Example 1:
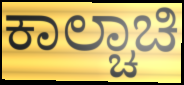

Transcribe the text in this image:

ಕಾಲ್ಚಾಚಿ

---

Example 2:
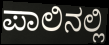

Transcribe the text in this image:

ಪಾಲಿನಲ್ಲಿ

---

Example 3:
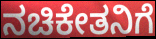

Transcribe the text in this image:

ನಚಿಕೇತನಿಗೆ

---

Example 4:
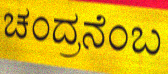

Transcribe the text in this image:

ಚಂದ್ರನೆಂಬ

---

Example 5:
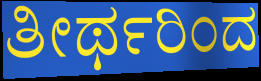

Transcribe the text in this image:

ತೀರ್ಥರಿಂದ